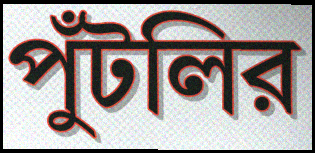
পুঁটলির